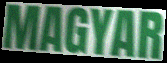
MAGYAR